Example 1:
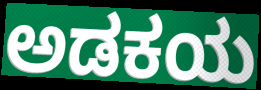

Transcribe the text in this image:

ಅಡಕಯ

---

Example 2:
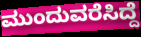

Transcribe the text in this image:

ಮುಂದುವರೆಸಿದ್ದೆ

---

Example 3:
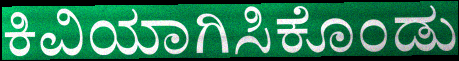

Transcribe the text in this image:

ಕಿವಿಯಾಗಿಸಿಕೊಂಡು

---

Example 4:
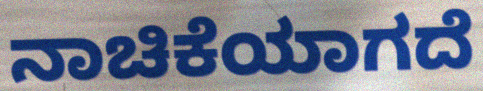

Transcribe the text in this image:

ನಾಚಿಕೆಯಾಗದೆ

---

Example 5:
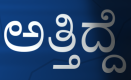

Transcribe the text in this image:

ಅತ್ತಿದ್ದೆ